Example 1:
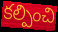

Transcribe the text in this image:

కల్పించి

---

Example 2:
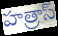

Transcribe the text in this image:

హత్రాస్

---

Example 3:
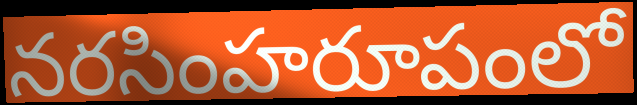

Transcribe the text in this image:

నరసింహరూపంలో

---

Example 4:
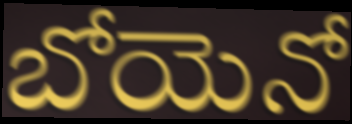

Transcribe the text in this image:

బోయెనో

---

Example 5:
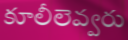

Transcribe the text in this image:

కూలీలెవ్వరు